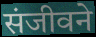
संजीवने